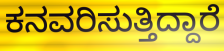
ಕನವರಿಸುತ್ತಿದ್ದಾರೆ